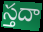
స్తదా